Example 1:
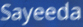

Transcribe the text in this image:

Sayeeda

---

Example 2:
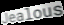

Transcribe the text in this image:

Jealous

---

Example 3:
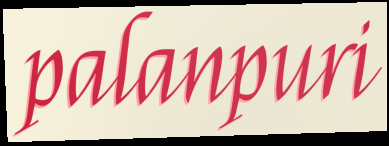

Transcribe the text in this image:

palanpuri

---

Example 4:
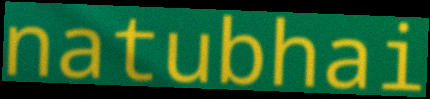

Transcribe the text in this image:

natubhai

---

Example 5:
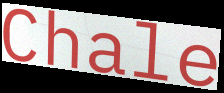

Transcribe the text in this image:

Chale